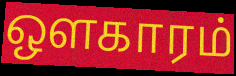
ஔகாரம்